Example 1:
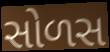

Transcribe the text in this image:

સોળસ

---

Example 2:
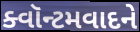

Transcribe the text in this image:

ક્વૉન્ટમવાદને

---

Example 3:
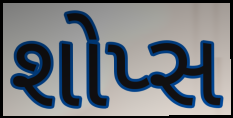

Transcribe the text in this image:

શોપ્સ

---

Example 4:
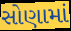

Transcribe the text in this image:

સોણામાં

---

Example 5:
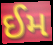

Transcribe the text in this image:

ઈમ